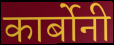
कार्बोनी